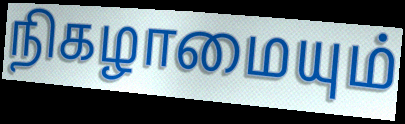
நிகழாமையும்